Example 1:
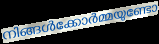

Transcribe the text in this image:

നിങ്ങൾക്കോർമ്മയുണ്ടോ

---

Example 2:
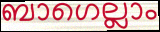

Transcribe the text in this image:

ബാഗെല്ലാം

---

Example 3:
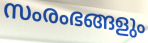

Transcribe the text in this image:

സംരംഭങ്ങളും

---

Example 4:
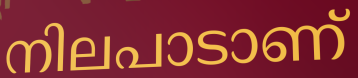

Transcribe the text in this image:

നിലപാടാണ്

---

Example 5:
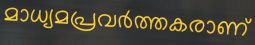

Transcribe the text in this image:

മാധ്യമപ്രവർത്തകരാണ്